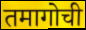
तमागोची